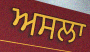
ਅਸਲਾ